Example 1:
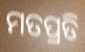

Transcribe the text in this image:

ମତପ୍ରତି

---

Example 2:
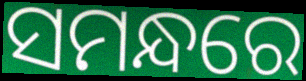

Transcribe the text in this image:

ସମନ୍ଧରେ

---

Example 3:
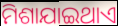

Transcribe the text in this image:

ମିଶାଯାଇଥାଏ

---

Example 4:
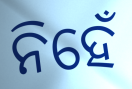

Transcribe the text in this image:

ନିହେଁ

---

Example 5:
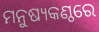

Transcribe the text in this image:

ମନୁଷ୍ୟକଣ୍ଠରେ